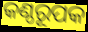
କଣ୍ଠରୂପକ